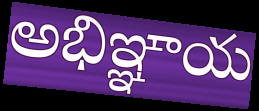
అభిఞ్ఞాయ